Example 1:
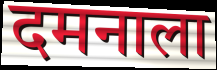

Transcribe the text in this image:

दमनाला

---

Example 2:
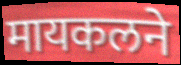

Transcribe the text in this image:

मायकलने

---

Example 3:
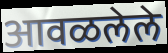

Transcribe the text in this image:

आवळलेले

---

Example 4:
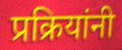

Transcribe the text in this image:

प्रक्रियांनी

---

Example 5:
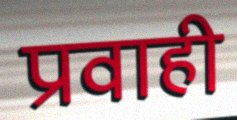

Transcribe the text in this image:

प्रवाही